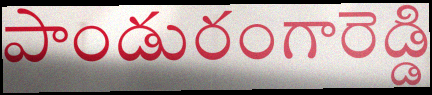
పాండురంగారెడ్డి